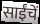
साईंचें